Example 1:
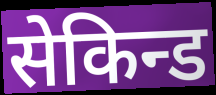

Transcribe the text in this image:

सेकिन्ड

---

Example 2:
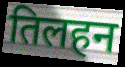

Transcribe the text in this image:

तिलहन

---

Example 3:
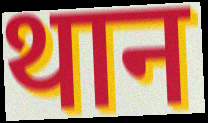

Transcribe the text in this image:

थान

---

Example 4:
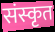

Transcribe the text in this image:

संस्‍कृत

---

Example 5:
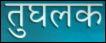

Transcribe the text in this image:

तुघलक